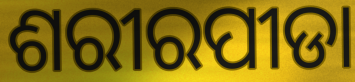
ଶରୀରପୀଡା